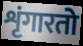
शृंगारतो